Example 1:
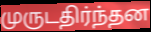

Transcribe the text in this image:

முருடதிர்ந்தன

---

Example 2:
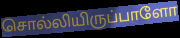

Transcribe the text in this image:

சொல்லியிருப்பாளோ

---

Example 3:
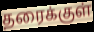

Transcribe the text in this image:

தரைக்குள்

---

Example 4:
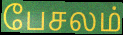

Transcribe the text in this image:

பேசலம்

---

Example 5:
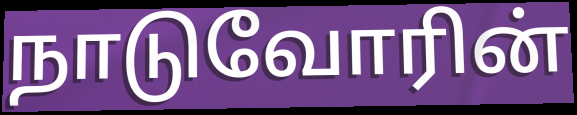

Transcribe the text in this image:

நாடுவோரின்